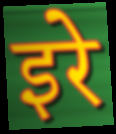
इरे